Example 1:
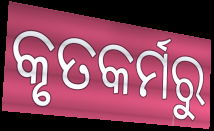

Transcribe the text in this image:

କୃତକର୍ମରୁ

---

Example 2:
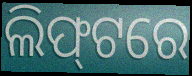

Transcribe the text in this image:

ଲିଫ୍‍ଟରେ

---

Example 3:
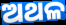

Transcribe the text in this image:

ଅଥଳ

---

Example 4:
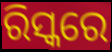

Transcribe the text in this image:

ରିସ୍କରେ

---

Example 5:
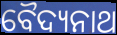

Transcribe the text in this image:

ବୈଦ୍ୟନାଥ